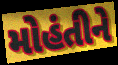
મોહંતીને